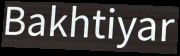
Bakhtiyar